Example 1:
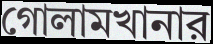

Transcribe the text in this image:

গোলামখানার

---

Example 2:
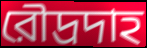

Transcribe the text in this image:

রৌদ্রদাহ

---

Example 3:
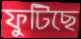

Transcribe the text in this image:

ফুটিছে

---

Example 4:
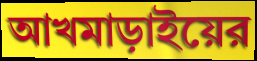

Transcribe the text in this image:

আখমাড়াইয়ের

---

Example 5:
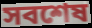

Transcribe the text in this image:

সবশেষ